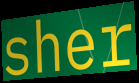
sher